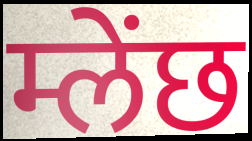
म्लेंछ